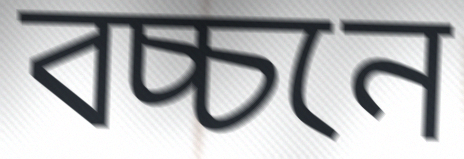
বচ্চনে